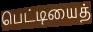
பெட்டியைத்